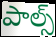
పాల్స్